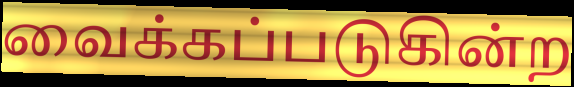
வைக்கப்படுகின்ற